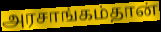
அரசாங்கம்தான்